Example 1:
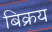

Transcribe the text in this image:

बिक्रय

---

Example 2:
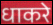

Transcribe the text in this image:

धाकरे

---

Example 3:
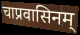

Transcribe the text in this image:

चाप्रवासिनम्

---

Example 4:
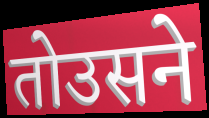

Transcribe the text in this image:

तोउसने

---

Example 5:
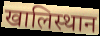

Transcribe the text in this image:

खालिस्थान